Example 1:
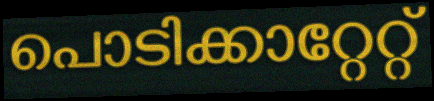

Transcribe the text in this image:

പൊടിക്കാറ്റേറ്റ്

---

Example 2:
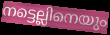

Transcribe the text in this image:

നട്ടെല്ലിനെയും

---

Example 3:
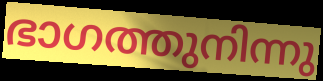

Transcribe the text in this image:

ഭാഗത്തുനിന്നു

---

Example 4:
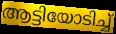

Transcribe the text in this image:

ആട്ടിയോടിച്ച്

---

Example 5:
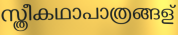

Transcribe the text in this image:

സ്ത്രീകഥാപാത്രങ്ങള്